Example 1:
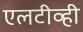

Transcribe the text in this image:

एलटीव्ही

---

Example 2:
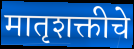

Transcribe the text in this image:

मातृशक्तीचे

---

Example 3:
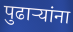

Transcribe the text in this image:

पुढाऱ्यांना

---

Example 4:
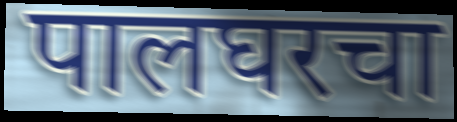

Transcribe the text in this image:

पालघरचा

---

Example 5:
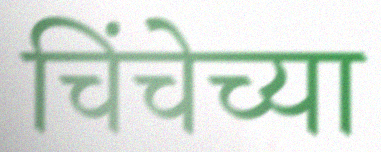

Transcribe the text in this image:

चिंचेच्या